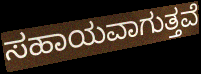
ಸಹಾಯವಾಗುತ್ತವೆ